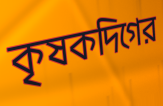
কৃষকদিগের